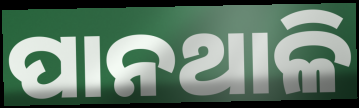
ପାନଥାଳି